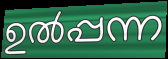
ഉൽപ്പന്ന